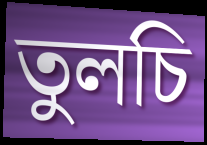
তুলচি